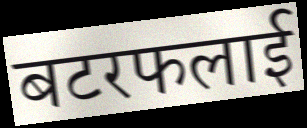
बटरफलाई